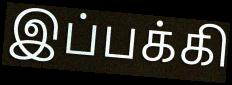
இப்பக்கி